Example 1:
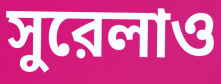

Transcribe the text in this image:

সুরেলাও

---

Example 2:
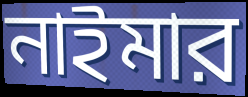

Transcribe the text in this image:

নাইমার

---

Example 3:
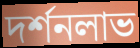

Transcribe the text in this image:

দর্শনলাভ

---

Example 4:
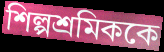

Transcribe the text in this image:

শিল্পশ্রমিককে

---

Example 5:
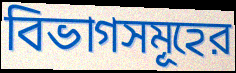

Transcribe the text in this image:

বিভাগসমূহের